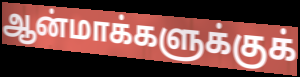
ஆன்மாக்களுக்குக்